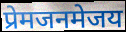
प्रेमजनमेजय